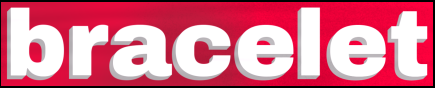
bracelet